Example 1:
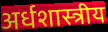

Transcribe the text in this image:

अर्धशास्त्रीय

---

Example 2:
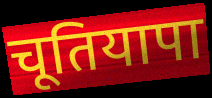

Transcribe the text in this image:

चूतियापा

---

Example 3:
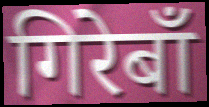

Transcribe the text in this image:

गिरेबाँ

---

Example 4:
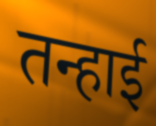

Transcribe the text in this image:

तन्हाई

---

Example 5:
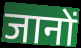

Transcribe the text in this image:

जानों